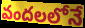
వందలలోనే